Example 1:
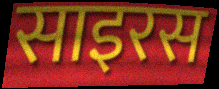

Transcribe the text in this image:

साइरस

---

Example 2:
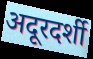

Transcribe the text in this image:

अदूरदर्शी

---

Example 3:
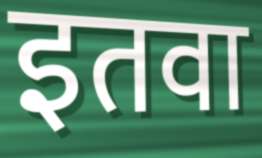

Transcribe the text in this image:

इतवा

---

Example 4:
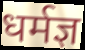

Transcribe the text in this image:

धर्मज्ञ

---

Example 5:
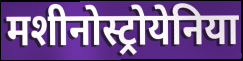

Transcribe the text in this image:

मशीनोस्ट्रोयेनिया